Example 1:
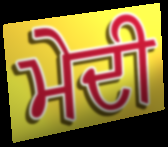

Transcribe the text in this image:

ਮੇਦੀ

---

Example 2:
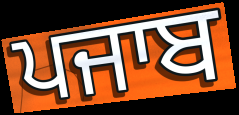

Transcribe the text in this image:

ਪਜਾਬ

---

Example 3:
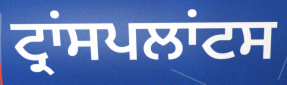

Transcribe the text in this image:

ਟ੍ਰਾਂਸਪਲਾਂਟਸ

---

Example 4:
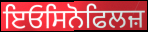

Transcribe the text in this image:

ਇਓਸਿਨੋਫਿਲਜ਼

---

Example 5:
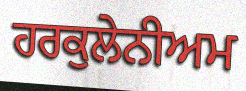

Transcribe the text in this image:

ਹਰਕੁਲੇਨੀਅਮ